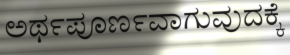
ಅರ್ಥಪೂರ್ಣವಾಗುವುದಕ್ಕೆ